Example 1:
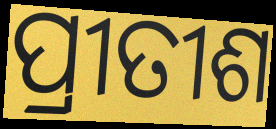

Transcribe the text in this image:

ପ୍ରୀତୀଶ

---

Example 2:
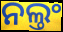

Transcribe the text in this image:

ନଲ୍ତଂ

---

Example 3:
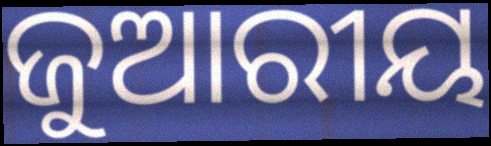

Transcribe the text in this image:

ଜୁଆରୀୟ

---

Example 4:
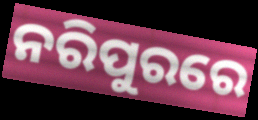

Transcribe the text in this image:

ନରିପୁରରେ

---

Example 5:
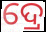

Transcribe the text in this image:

ଦ୍ରେ